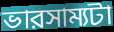
ভারসাম্যটা